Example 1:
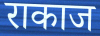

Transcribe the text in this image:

राकाज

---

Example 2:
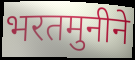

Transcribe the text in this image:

भरतमुनीने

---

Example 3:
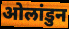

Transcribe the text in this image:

ओलांडुन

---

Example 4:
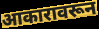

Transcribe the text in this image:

आकारावरून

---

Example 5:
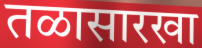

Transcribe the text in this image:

तळासारखा